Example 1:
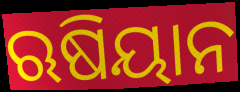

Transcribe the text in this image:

ଋଷିୟାନ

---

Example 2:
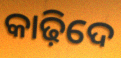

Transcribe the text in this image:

କାଢ଼ିଦେ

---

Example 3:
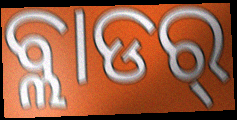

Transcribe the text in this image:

ବ୍ଲାଡର୍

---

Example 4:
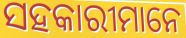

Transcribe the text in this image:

ସହକାରୀମାନେ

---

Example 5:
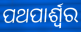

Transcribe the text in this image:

ପଥପାର୍ଶ୍ଵର